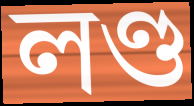
লণ্ড